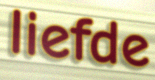
liefde